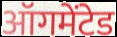
ऑगमेंटेड